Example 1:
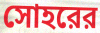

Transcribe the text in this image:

সোহরের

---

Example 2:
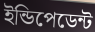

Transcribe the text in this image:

ইন্ডিপেডেন্ট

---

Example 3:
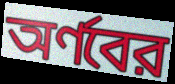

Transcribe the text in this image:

অর্ণবের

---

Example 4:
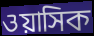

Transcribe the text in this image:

ওয়াসিক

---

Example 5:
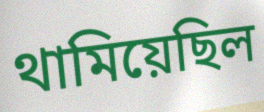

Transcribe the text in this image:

থামিয়েছিল